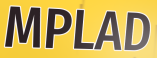
MPLAD